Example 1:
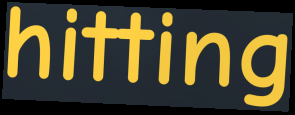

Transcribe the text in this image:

hitting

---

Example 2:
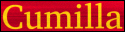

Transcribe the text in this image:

Cumilla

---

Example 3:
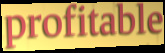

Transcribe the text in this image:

profitable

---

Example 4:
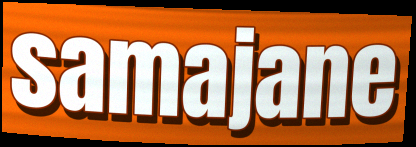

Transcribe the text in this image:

samajane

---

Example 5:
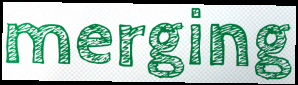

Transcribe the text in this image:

merging